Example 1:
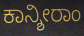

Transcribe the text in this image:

ಕಾನ್ಶೀರಾಂ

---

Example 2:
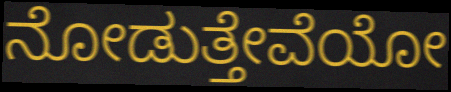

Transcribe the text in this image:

ನೋಡುತ್ತೇವೆಯೋ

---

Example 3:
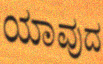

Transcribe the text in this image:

ಯಾವುದ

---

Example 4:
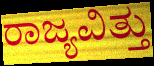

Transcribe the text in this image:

ರಾಜ್ಯವಿತ್ತು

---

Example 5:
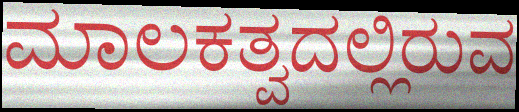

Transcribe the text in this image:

ಮಾಲಕತ್ವದಲ್ಲಿರುವ